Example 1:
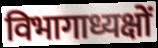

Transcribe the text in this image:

विभागाध्यक्षों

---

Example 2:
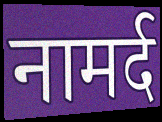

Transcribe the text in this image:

नामर्द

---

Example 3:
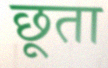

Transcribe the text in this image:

छूता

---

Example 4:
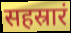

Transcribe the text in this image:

सहस्रारं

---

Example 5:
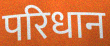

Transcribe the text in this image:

परिधान